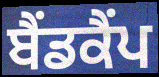
ਬੈਂਡਕੈਂਪ